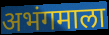
अभंगमाला